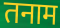
तनाम